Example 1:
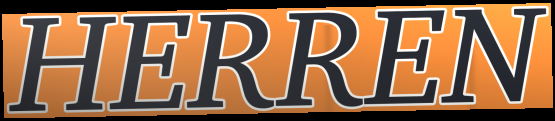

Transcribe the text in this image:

HERREN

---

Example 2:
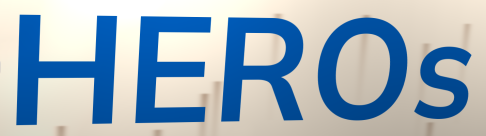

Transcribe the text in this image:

HEROs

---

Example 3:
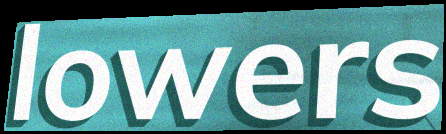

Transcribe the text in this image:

lowers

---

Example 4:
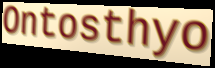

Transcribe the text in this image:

Ontosthyo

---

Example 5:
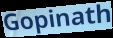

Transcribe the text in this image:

Gopinath